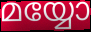
മയ്യോ